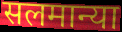
सलमान्या